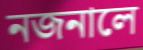
নজনালে